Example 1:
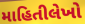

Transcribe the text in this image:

માહિતીલેખો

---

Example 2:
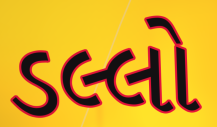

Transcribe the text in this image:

ડલ્લો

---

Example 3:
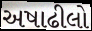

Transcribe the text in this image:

અષાઢીલો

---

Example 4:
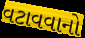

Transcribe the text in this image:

વટાવવાનો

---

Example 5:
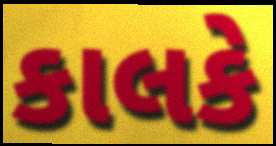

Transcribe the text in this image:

કાલકે